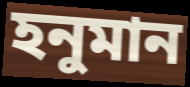
হনুমান